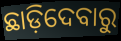
ଛାଡ଼ିଦେବାରୁ